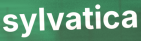
sylvatica